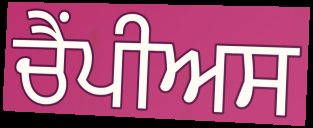
ਚੈਂਪੀਅਸ